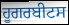
ਹੂਗਰਬੀਟਸ